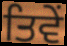
ਤਿਵੇਂ